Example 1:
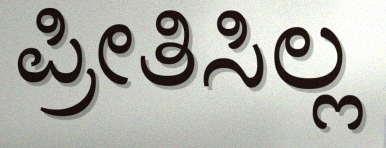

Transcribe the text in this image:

ಪ್ರೀತಿಸಿಲ್ಲ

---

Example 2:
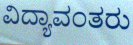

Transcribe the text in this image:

ವಿದ್ಯಾವಂತರು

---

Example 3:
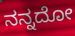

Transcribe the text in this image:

ನನ್ನದೋ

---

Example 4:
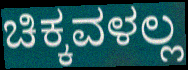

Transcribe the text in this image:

ಚಿಕ್ಕವಳಲ್ಲ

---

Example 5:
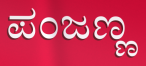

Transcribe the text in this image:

ಪಂಜಣ್ಣ